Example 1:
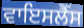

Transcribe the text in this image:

ਵਾਇਸਲੈੱਸ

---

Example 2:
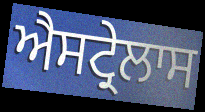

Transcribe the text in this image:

ਐਸਟ੍ਰੇਲਾਸ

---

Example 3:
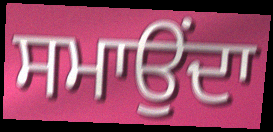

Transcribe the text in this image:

ਸਮਾਉਂਦਾ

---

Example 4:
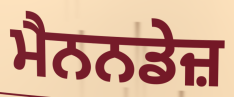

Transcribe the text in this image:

ਮੈਨਨਡੇਜ਼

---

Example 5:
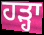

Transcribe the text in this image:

ਹੜ੍ਹਾ